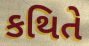
કથિતે